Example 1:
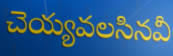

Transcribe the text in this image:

చెయ్యవలసినవీ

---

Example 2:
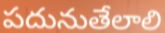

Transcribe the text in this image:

పదునుతేలాలి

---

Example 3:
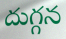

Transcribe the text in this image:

దుగ్గన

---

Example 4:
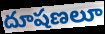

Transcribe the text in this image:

దూషణలూ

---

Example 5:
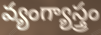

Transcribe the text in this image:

వ్యంగ్యాస్త్రం